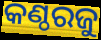
କଣ୍ଠରଜୁ